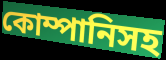
কোম্পানিসহ